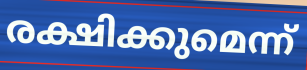
രക്ഷിക്കുമെന്ന്